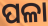
ପଳା